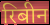
रिबीन